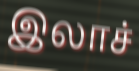
இலாச்